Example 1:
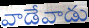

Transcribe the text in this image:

వాడేవాడు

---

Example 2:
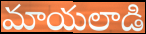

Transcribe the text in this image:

మాయలాడి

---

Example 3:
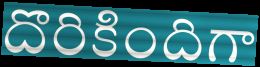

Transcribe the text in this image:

దొరికిందిగా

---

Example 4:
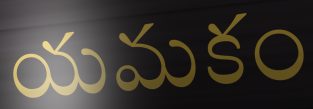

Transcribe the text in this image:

యమకం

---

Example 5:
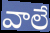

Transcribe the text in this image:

వాలే